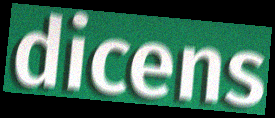
dicens